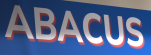
ABACUS